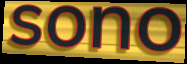
sono